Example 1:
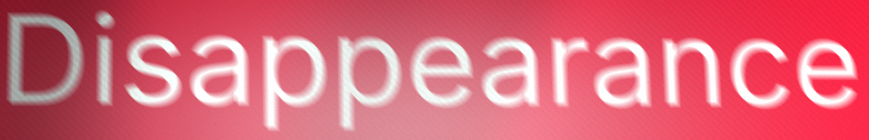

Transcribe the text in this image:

Disappearance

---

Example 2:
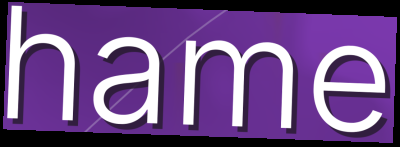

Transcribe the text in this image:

hame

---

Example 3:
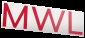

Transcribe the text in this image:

MWL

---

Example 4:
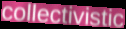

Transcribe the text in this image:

collectivistic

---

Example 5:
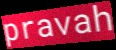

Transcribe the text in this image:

pravah